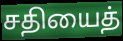
சதியைத்